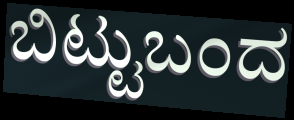
ಬಿಟ್ಟುಬಂದ